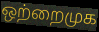
ஒற்றைமுக